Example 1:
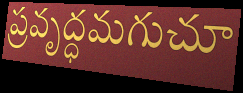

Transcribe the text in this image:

ప్రవృద్ధమగుచూ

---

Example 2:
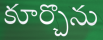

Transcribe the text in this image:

కూర్చొను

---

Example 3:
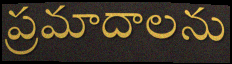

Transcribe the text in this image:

ప్రమాదాలను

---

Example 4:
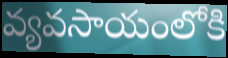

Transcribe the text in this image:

వ్యవసాయంలోకి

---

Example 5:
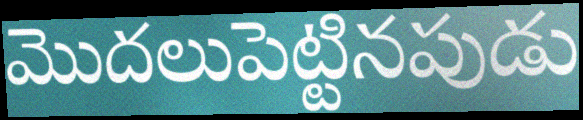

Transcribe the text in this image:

మొదలుపెట్టినపుడు